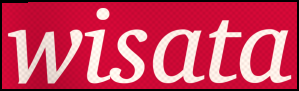
wisata